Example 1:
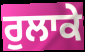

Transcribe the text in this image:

ਰੁਲਾਕੇ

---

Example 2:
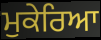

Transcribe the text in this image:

ਮੁਕੇਰਿਆ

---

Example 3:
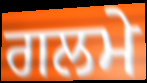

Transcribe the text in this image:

ਗਲਮੇ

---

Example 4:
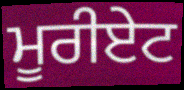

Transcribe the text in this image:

ਮੂਰੀਏਟ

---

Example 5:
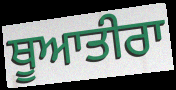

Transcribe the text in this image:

ਥੂਆਤੀਰਾ